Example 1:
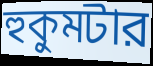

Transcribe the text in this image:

হুকুমটার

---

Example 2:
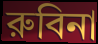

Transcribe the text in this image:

রুবিনা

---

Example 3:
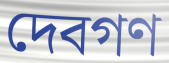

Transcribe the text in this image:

দেবগণ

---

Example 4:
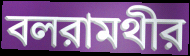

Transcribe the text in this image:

বলরামথীর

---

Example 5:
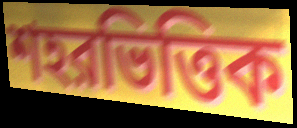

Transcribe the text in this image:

শহরভিত্তিক